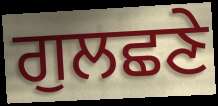
ਗੁਲਛਣੇ